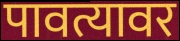
पावत्यावर